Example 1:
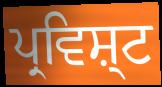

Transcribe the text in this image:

ਪ੍ਰਵਿਸ਼੍ਟ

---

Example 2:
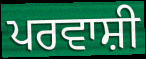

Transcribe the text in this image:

ਪਰਵਾਸ਼ੀ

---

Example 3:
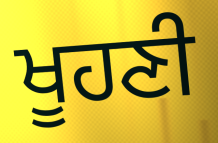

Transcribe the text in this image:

ਖੂਹਣੀ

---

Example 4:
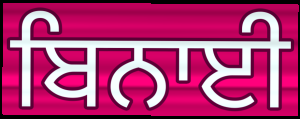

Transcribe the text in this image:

ਬਿਨਾਈ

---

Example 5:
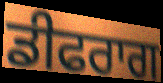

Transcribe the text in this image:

ਡੀਫਰਾਗ